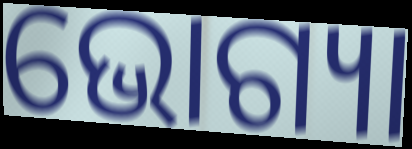
ଭୋଗ୍ୟା